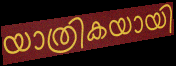
യാത്രികയായി